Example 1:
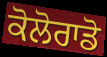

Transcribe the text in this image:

ਕੋਲੋਰਾਡੋ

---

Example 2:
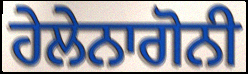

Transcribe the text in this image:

ਹੇਲੇਨਾਗੋਨੀ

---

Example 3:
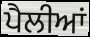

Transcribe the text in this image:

ਪੈਲੀਆਂ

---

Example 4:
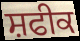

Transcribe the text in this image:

ਸ਼ਫੀਕ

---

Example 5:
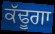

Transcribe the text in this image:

ਕੱਢੂਗਾ